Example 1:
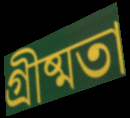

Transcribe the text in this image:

গ্ৰীষ্মতা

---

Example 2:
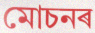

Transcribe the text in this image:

মোচনৰ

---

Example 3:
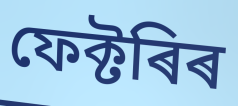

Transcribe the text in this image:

ফেক্টৰিৰ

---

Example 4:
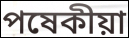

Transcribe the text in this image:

পষেকীয়া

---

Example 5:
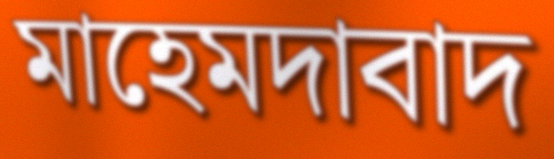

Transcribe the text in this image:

মাহেমদাবাদ